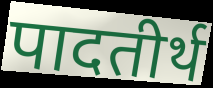
पादतीर्थ